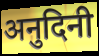
अनुदिनी